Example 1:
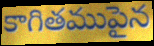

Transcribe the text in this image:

కాగితముపైన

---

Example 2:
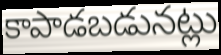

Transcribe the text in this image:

కాపాడబడునట్లు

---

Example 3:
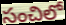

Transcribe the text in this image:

సంచిలో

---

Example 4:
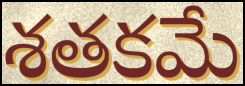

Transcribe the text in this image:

శతకమే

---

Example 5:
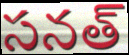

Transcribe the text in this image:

సనత్